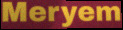
Meryem